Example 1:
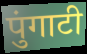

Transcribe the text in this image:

पुंगाटी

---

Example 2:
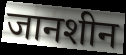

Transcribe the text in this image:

जानशीन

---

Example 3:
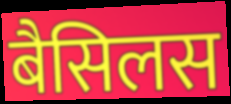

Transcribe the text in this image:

बैसिलस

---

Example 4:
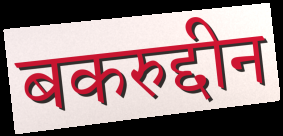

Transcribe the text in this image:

बकरुद्दीन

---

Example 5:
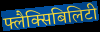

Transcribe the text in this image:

फ्लैक्सिबिलिटी